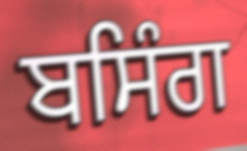
ਬਸਿੰਗ